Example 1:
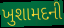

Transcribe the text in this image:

ખુશામદની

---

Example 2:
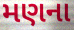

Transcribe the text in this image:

મણના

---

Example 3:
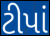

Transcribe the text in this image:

ટીપાં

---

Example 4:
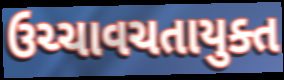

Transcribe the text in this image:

ઉચ્ચાવચતાયુક્ત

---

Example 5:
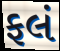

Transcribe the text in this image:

ફલં